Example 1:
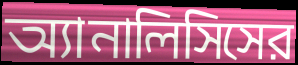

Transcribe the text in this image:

অ্যানালিসিসের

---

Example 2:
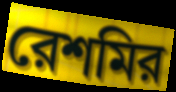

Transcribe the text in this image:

রেশমির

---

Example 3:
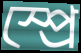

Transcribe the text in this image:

স্প্রে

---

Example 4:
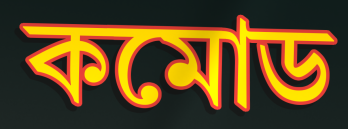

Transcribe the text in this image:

কমোড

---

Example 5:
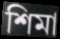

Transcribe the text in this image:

শিমা